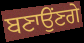
ਬਣਾਉਂਣਗੇ